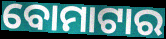
ବୋମାଟାର